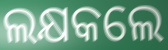
ଲକ୍ଷକଲେ